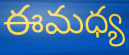
ఈమధ్య